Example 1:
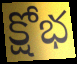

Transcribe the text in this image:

క్షోభ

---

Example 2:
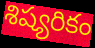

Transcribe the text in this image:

శిష్యరికం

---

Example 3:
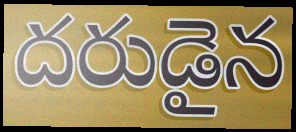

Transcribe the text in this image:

దరుడైన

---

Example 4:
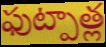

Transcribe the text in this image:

ఫుట్పాత్ల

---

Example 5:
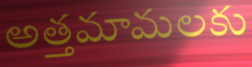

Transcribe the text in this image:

అత్తమామలకు